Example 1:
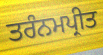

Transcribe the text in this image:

ਤਰੰਨਮਪ੍ਰੀਤ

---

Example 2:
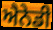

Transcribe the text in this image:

ਐਨੇਡੀ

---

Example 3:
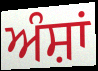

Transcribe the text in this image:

ਅੰਸ਼ਾਂ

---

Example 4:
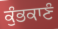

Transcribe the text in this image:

ਕੁੰਭਕਾਣੰ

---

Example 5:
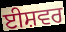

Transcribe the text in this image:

ਈਸ਼ਵਰ